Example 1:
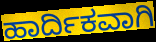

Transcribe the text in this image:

ಹಾರ್ದಿಕವಾಗಿ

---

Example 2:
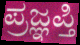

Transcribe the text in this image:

ಪ್ರಜ್ಞಪ್ತಿ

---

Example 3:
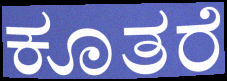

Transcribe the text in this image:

ಕೂತರೆ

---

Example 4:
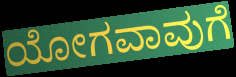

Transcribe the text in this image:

ಯೋಗವಾವುಗೆ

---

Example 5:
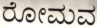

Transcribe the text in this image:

ರೋಮವ